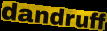
dandruff